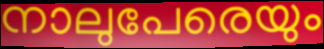
നാലുപേരെയും